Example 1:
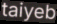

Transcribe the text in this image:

taiyeb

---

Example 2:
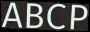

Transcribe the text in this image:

ABCP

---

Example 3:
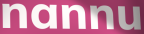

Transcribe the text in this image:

nannu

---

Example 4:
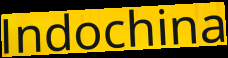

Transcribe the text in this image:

Indochina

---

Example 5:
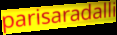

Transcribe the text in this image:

parisaradalli